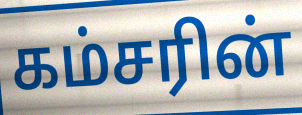
கம்சரின்